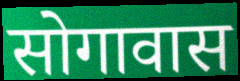
सोगावास